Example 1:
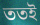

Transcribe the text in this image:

ততই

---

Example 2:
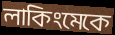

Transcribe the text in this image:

লাকিংমেকে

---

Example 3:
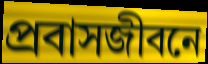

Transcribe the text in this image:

প্রবাসজীবনে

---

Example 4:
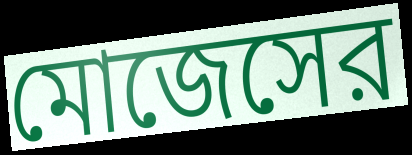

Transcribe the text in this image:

মোজেসের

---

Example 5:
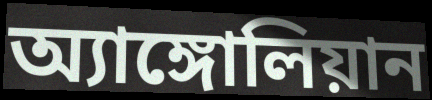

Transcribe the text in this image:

অ্যাঙ্গোলিয়ান